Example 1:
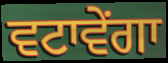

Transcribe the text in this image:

ਵਟਾਵੇਂਗਾ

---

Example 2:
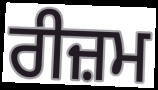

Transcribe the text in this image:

ਰੀਜ਼ਮ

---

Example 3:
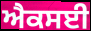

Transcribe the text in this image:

ਐਕਸਈ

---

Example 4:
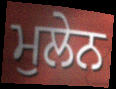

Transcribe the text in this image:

ਮੁਲੇਨ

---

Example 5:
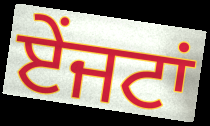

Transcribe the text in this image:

ਏਂਜਟਾਂ